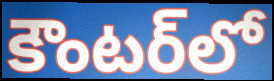
కౌంటర్‌లో